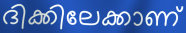
ദിക്കിലേക്കാണ്